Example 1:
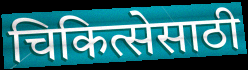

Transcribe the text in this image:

चिकित्सेसाठी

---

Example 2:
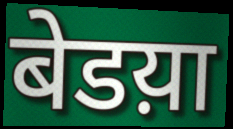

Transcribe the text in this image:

बेडय़ा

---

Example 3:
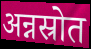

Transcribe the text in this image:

अन्नस्रोत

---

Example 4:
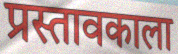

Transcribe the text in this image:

प्रस्तावकाला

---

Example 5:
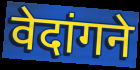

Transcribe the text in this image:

वेदांगने